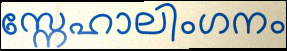
സ്നേഹാലിംഗനം